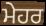
ਮੇਹਰ